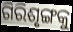
ଗିରିଶୃଙ୍ଗକୁ